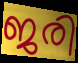
ജരി